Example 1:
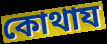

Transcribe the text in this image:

কোথায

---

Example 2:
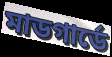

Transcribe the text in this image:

মাডগার্ডে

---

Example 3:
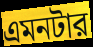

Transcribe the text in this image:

এমনটার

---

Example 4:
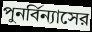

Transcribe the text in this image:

পুনর্বিন্যাসের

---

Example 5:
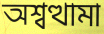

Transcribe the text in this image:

অশ্বত্থামা